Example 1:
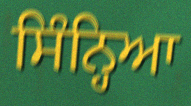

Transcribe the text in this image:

ਸਿੰਨ੍ਹਿਆ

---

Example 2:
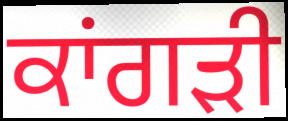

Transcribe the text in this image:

ਕਾਂਗੜੀ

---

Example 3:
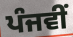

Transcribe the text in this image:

ਪੰਜਵੀਂ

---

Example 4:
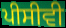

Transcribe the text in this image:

ਪੀਸੀਵੀ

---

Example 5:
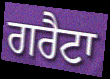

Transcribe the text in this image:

ਗਰੈਟਾ